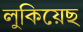
লুকিয়েছ